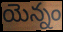
యెన్నం